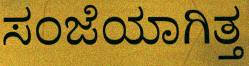
ಸಂಜೆಯಾಗಿತ್ತ